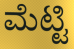
ಮೆಟ್ಟಿ